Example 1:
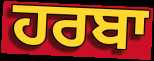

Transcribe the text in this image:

ਹਰਬਾ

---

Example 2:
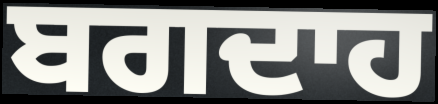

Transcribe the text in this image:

ਬਗਦਾਹ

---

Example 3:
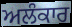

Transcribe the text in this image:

ਅਲੰਕਾਰ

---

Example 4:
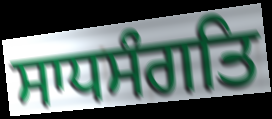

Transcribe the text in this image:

ਸਾਧਸੰਗਤਿ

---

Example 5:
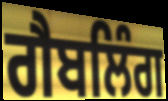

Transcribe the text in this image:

ਗੈਬਲਿੰਗ